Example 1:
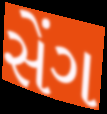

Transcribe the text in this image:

સેંગ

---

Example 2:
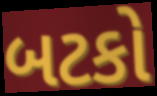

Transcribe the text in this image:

બટકો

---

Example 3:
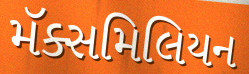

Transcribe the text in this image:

મૅક્સમિલિયન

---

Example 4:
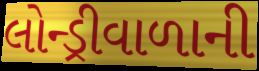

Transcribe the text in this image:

લોન્ડ્રીવાળાની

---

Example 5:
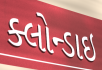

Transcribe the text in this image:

ક્લોન્ડાઇ